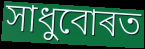
সাধুবোৰত